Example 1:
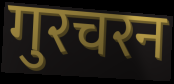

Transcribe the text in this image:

गुरचरन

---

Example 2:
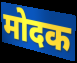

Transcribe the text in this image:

मोदक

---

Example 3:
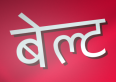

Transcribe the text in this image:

बेल्ट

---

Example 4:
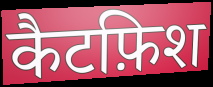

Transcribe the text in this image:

कैटफ़िश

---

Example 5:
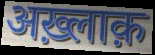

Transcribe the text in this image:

अख़्लाक़